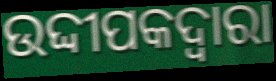
ଉଦ୍ଦୀପକଦ୍ବାରା